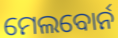
ମେଲବୋର୍ନ